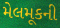
મેલમૂકની